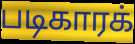
படிகாரக்